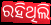
ରହିଥିଲି